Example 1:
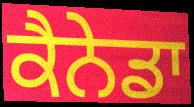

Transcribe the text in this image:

ਕੈਨੇਡਾ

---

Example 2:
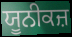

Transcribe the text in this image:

ਯੂਨੀਕਜ਼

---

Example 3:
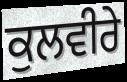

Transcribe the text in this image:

ਕੁਲਵੀਰੇ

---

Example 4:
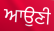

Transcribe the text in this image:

ਆਉਣੀ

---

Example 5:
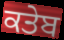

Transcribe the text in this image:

ਕਤੇਬ